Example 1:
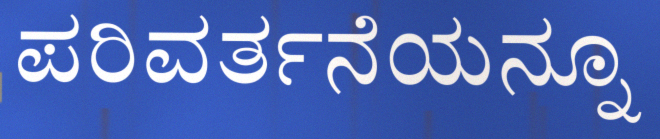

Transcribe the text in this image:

ಪರಿವರ್ತನೆಯನ್ನೂ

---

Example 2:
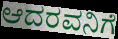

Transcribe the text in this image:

ಆದರವನಿಗೆ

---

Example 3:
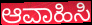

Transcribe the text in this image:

ಆವಾಹಿಸಿ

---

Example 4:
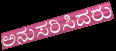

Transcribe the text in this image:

ಅನುಸರಿಸಿದರು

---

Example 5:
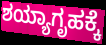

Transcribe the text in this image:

ಶಯ್ಯಾಗೃಹಕ್ಕೆ